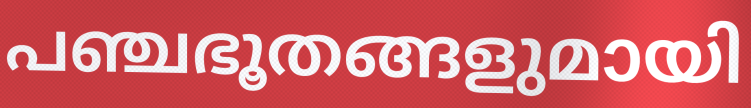
പഞ്ചഭൂതങ്ങളുമായി